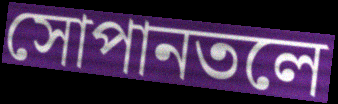
সোপানতলে